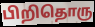
பிறிதொரு